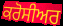
ਕਰੋਸੀਅਰ